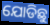
ଯୋଡିଛୁ